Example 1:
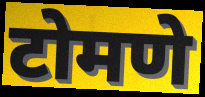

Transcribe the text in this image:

टोमणे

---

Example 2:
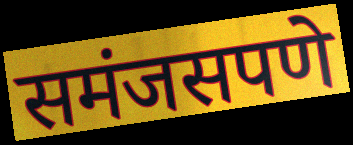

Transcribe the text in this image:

समंजसपणे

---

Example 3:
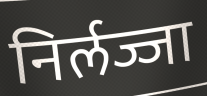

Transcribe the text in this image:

निर्लज्जा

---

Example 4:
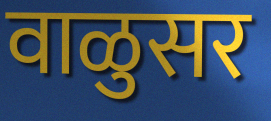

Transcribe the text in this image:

वाळुसर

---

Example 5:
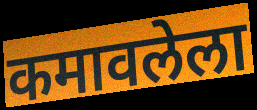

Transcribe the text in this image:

कमावलेला